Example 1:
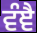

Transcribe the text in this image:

ਵੰਞੈ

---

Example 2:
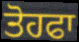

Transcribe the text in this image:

ਤੋਹਫਾ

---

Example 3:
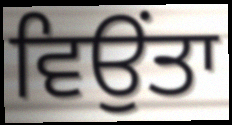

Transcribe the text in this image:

ਵਿਉਂਤਾ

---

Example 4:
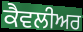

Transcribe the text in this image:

ਕੈਵਲੀਅਰ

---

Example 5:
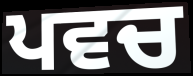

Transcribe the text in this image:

ਪਵਚ